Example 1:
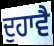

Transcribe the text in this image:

ਦੁਹਾਵੈ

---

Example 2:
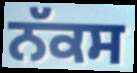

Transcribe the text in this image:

ਨੱਕਸ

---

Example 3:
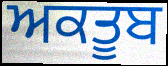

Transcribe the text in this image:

ਅਕਤੂਬ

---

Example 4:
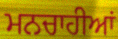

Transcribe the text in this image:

ਮਨਚਾਹੀਆਂ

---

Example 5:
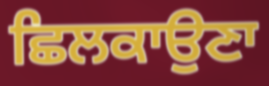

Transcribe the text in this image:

ਛਿਲਕਾਉਣਾ